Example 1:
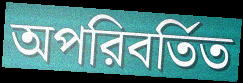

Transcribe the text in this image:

অপরিবর্তিত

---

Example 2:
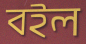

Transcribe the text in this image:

বইল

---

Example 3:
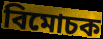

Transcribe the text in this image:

বিমোচক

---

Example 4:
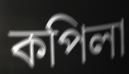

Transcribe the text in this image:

কপিলা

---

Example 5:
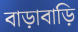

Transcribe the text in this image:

বাড়াবাড়ি